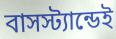
বাসস্ট্যান্ডেই